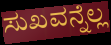
ಸುಖವನ್ನೆಲ್ಲ